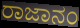
ರಾಜಾನಂ